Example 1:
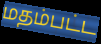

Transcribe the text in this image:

மதம்பட்ட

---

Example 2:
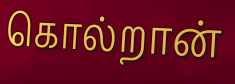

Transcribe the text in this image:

கொல்றான்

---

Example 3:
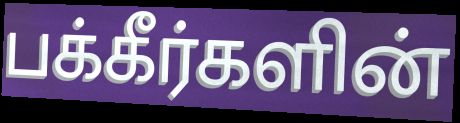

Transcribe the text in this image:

பக்கீர்களின்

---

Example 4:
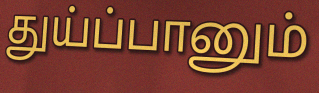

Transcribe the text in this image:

துய்ப்பானும்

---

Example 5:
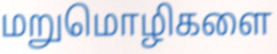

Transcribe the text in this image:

மறுமொழிகளை